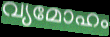
വ്യമോഹം